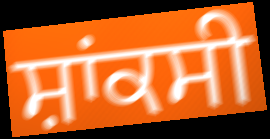
ਸ਼ਾਂਕਸੀ